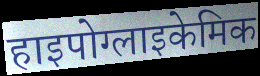
हाइपोग्लाइकेमिक